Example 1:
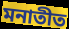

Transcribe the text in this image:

মনাতীত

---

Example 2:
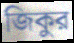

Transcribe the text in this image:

জিকুর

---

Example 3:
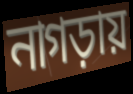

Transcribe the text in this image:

নাগড়ায়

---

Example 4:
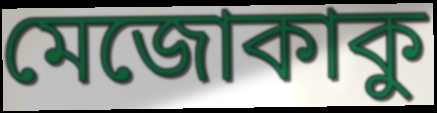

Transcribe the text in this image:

মেজোকাকু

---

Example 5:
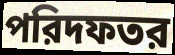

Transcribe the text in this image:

পরিদফতর